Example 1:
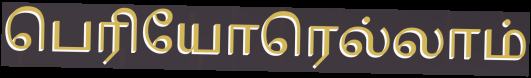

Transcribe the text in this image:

பெரியோரெல்லாம்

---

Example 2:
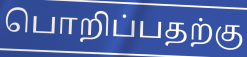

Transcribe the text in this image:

பொறிப்பதற்கு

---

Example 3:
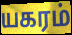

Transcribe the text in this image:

யகரம்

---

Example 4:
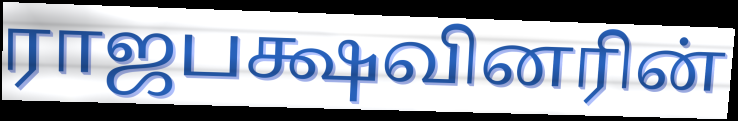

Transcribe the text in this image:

ராஜபக்ஷவினரின்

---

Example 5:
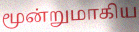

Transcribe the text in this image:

மூன்றுமாகிய